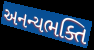
અનન્યભક્તિ